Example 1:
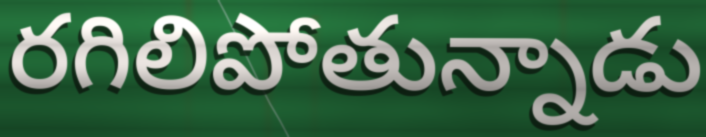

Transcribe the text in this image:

రగిలిపోతున్నాడు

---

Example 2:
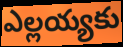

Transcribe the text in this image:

ఎల్లయ్యకు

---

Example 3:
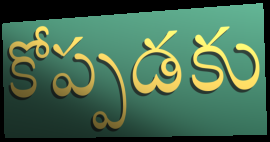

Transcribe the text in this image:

కోప్పడకు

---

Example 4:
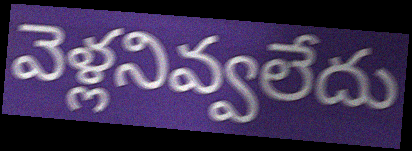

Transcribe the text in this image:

వెళ్లనివ్వలేదు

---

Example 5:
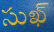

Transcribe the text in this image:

సుఖ్